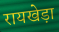
रायखेड़ा